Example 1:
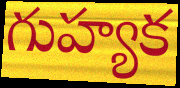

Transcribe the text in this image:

గుహ్యక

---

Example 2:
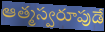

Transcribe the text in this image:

ఆత్మస్వరూపుడే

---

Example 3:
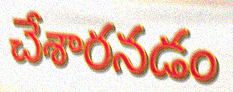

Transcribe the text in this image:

చేశారనడం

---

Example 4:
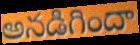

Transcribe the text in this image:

అనడిగిందా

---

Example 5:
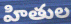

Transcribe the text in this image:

హితుల